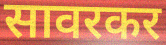
सावरकर